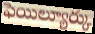
ఫెయిల్యూర్కు